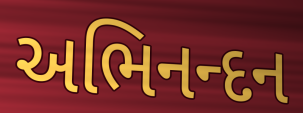
અભિનન્દન